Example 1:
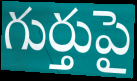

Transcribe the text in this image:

గుర్తుపై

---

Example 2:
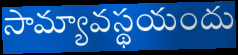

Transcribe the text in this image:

సామ్యావస్థయందు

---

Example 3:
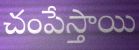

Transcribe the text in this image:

చంపేస్తాయి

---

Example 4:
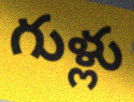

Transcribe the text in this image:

గుళ్లు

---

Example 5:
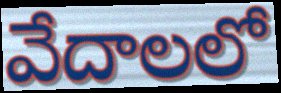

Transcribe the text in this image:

వేదాలలో